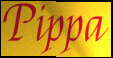
Pippa